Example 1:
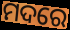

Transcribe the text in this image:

ମଦରେ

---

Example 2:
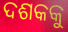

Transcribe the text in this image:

ଦଶକକୁ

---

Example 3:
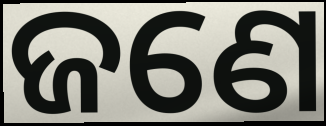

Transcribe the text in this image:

ଜଣେ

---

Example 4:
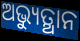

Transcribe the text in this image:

ଅଭ୍ୟୁତ୍ଥାନ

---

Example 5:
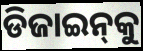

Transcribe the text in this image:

ଡିଜାଇନ୍‌କୁ